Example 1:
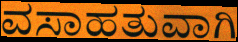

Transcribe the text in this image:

ವಸಾಹತುವಾಗಿ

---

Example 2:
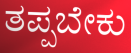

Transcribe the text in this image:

ತಪ್ಪಬೇಕು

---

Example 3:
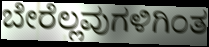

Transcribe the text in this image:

ಬೇರೆಲ್ಲವುಗಳಿಗಿಂತ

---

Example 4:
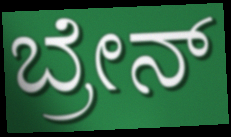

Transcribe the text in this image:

ಬ್ರೇನ್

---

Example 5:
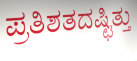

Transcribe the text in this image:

ಪ್ರತಿಶತದಷ್ಟಿತ್ತು